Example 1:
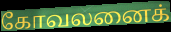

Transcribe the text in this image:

கோவலனைக்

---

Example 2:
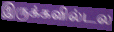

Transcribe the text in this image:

இருக்கவில்டல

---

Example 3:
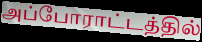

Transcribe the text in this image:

அப்போராட்டத்தில்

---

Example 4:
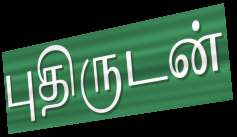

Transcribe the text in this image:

புதிருடன்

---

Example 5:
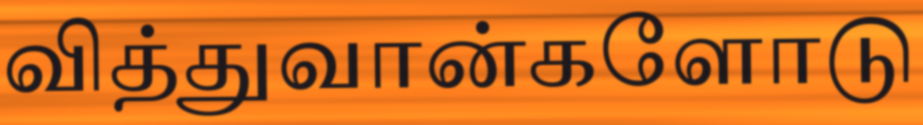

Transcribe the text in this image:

வித்துவான்களோடு